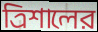
ত্রিশালের